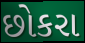
છોકરા